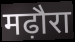
मढ़ौरा